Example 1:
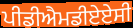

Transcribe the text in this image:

ਪੀਡੀਐਮਡੀਏਏਸੀ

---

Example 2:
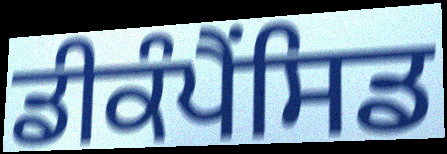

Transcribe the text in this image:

ਡੀਕੰਪੈਂਸਿਡ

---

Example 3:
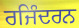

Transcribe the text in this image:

ਰਜਿੰਦਰਨ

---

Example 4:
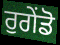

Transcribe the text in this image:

ਰੁਗੇਂਡੋ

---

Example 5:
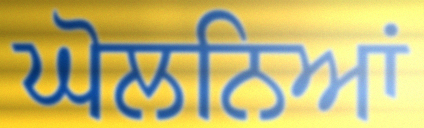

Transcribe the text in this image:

ਘੋਲਨਿਆਂ